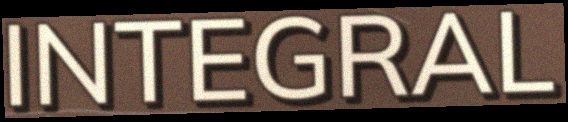
INTEGRAL